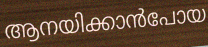
ആനയിക്കാൻപോയ